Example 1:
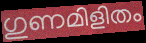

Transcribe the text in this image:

ഗുണമിളിതം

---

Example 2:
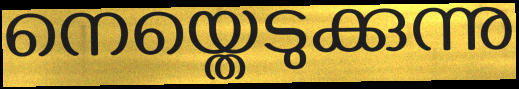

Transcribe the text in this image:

നെയ്തെടുക്കുന്നു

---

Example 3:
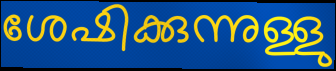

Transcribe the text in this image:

ശേഷിക്കുന്നുള്ളു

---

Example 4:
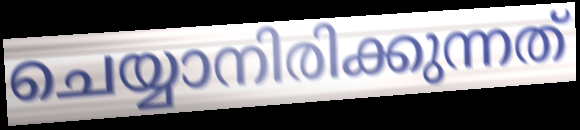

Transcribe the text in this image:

ചെയ്യാനിരിക്കുന്നത്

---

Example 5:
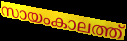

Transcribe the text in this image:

സായംകാലത്ത്